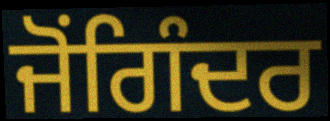
ਜੋਂਗਿੰਦਰ